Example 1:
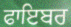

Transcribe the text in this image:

ਫਾਇਬਰ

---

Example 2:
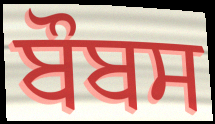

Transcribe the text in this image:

ਬੌਬਸ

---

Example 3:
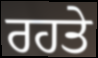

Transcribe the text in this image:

ਰਹਤੇ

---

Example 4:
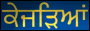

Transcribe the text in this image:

ਕੇਜੜਿਆਂ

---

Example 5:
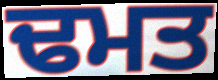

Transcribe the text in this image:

ਢਮਤ